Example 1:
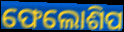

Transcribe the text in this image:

ଫେଲୋଶିପ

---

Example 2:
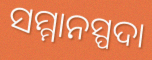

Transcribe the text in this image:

ସମ୍ମାନସ୍ପଦା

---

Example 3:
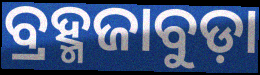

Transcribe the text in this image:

ବ୍ରହ୍ମଜାବୁଡ଼ା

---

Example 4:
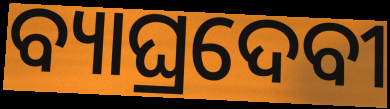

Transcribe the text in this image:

ବ୍ୟାଘ୍ରଦେବୀ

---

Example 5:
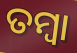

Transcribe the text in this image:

ତମ୍ୱା